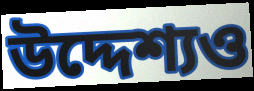
উদ্দেশ্যও